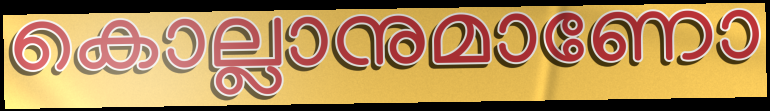
കൊല്ലാനുമാണോ